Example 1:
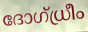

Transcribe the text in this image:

ദോഗ്ധ്രീം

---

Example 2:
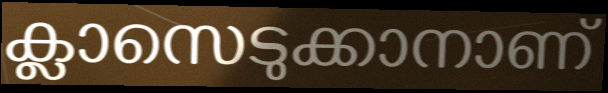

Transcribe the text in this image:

ക്ലാസെടുക്കാനാണ്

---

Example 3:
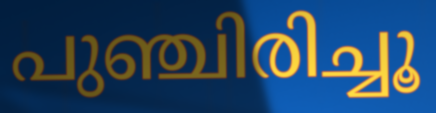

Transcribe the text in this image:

പുഞ്ചിരിച്ചൂ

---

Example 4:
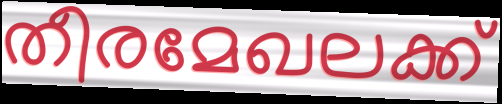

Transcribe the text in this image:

തീരമേഖലക്ക്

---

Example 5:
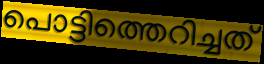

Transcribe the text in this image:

പൊട്ടിത്തെറിച്ചത്